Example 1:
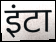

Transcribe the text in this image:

इंटा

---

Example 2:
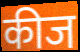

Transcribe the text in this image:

कीज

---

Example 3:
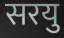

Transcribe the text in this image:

सरयु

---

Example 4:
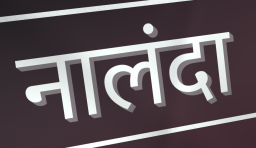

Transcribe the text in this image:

नालंदा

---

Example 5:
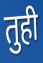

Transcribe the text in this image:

तुही